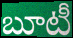
బూటీ